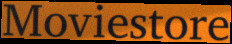
Moviestore